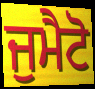
ਜੁਮੈਟੋ